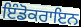
ਇੰਡੋਕਰਾਇਨ